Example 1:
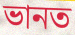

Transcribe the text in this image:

ভানত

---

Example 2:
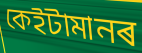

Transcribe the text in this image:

কেইটামানৰ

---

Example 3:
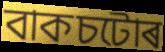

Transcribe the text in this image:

বাকচটোৰ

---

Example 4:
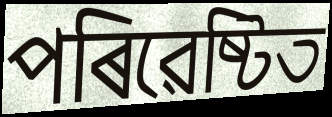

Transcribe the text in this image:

পৰিৱেষ্টিত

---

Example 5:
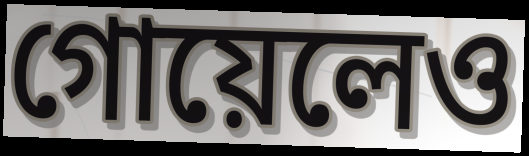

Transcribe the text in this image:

গোয়েলেও